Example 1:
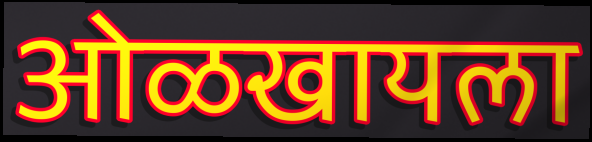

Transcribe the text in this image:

ओळखायला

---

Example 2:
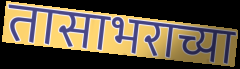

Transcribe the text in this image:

तासाभराच्या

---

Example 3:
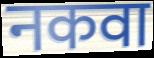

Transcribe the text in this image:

नकवा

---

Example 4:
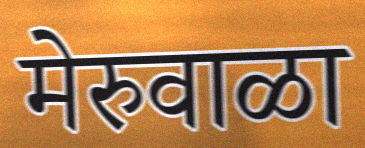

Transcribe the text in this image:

मेरुवाळा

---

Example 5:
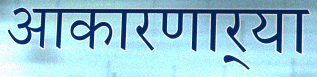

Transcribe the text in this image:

आकारणार्या